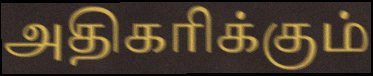
அதிகரிக்கும்